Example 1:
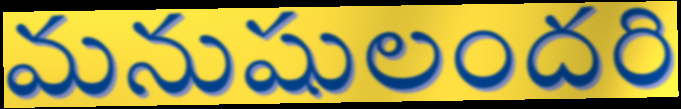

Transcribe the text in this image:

మనుషులందరి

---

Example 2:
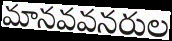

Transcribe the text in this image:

మానవవనరుల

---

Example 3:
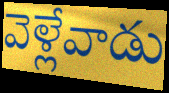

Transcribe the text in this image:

వెళ్లేవాడు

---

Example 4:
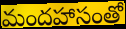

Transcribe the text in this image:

మందహాసంతో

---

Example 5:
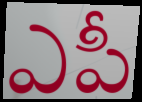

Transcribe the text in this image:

ఎపీ